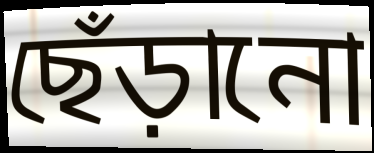
ছেঁড়ানো